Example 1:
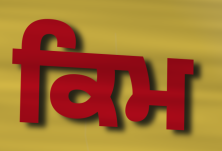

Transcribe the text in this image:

ਕਿਮ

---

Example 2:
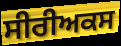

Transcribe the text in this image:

ਸੀਰੀਅਕਸ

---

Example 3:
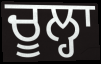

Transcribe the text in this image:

ਚੂਲ੍ਹਾ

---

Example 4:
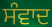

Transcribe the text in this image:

ਸੰਵਾਦ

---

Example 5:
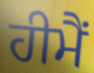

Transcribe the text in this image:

ਹੀਮੈਂ